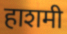
हाशमी